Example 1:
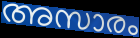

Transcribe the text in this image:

അസാരം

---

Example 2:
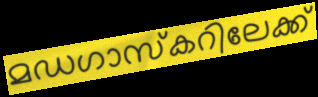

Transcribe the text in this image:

മഡഗാസ്കറിലേക്ക്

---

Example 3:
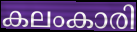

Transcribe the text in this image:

കലംകാരി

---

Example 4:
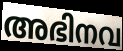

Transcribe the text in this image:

അഭിനവ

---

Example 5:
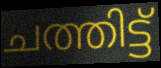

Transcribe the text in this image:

ചത്തിട്ട്